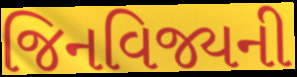
જિનવિજ્યની